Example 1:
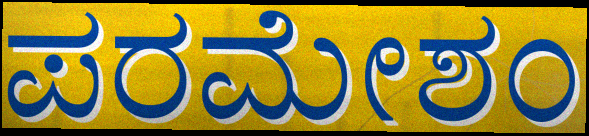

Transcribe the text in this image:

ಪರಮೇಶಂ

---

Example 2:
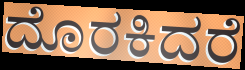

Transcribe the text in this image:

ದೊರಕಿದರೆ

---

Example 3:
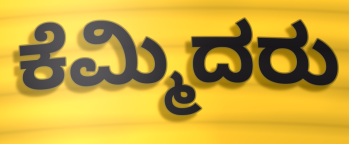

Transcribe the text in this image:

ಕೆಮ್ಮಿದರು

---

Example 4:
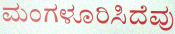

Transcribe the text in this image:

ಮಂಗಳೂರಿಸಿದೆವು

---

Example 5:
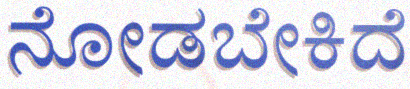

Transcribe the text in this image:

ನೋಡಬೇಕಿದೆ